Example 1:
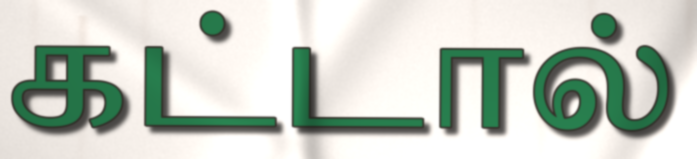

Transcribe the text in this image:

கட்டால்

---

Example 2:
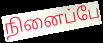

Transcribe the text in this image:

நினைப்பே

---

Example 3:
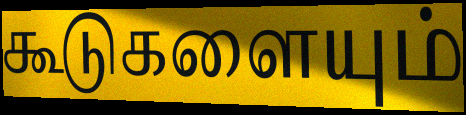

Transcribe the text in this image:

கூடுகளையும்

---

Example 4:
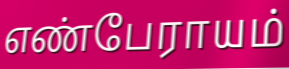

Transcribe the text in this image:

எண்பேராயம்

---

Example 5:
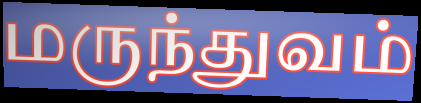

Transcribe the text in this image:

மருந்துவம்